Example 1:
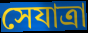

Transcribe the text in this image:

সেযাত্রা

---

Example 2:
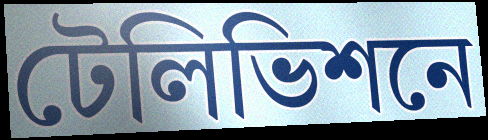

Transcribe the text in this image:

টেলিভিশনে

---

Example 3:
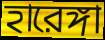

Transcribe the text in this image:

হারেঙ্গা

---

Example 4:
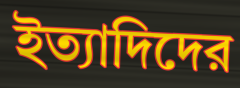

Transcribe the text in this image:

ইত্যাদিদের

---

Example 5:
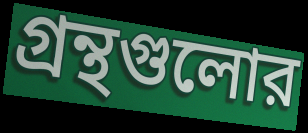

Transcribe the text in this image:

গ্রন্থগুলোর